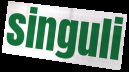
singuli